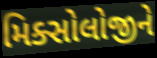
મિક્સોલોજીને